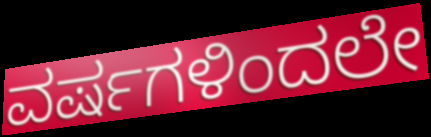
ವರ್ಷಗಳಿಂದಲೇ